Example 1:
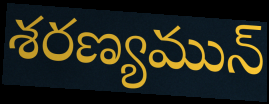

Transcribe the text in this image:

శరణ్యమున్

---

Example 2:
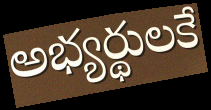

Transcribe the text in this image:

అభ్యర్థులకే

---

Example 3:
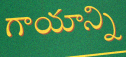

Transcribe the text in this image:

గాయాన్ని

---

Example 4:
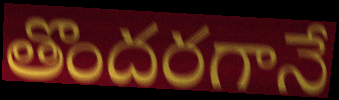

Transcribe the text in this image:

తొందరగానే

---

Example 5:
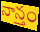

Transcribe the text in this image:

నాన్తం